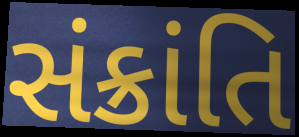
સંક્રાંતિ